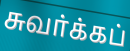
சுவர்க்கப்